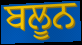
ਬਲੂਨ